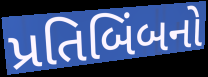
પ્રતિબિંબનો